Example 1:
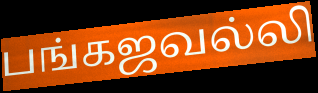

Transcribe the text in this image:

பங்கஜவல்லி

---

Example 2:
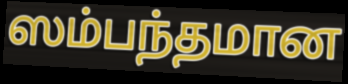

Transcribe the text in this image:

ஸம்பந்தமான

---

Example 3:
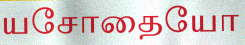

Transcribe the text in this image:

யசோதையோ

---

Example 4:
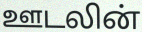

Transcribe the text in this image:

ஊடலின்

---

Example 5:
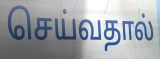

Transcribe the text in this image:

செய்வதால்